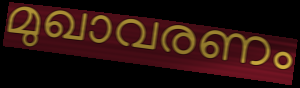
മുഖാവരണം